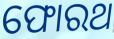
ଫୋରଥ